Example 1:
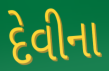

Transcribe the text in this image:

દેવીના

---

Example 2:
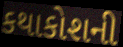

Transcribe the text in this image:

કથાકોશની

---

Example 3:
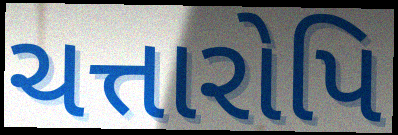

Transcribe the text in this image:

ચત્તારોપિ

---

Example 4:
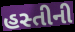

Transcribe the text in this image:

હસ્તીની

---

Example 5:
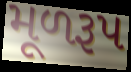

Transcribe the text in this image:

મૂળરૂપ